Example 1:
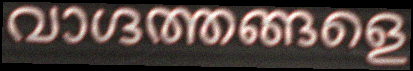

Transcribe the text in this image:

വാഗ്ദത്തങ്ങളെ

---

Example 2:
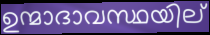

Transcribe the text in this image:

ഉന്മാദാവസ്ഥയില്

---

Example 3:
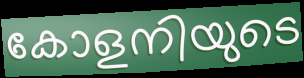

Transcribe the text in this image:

കോളനിയുടെ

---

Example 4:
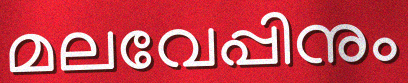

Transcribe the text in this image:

മലവേപ്പിനും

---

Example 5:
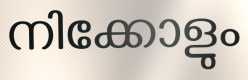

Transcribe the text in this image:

നിക്കോളും